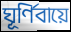
ঘূর্ণিবায়ে